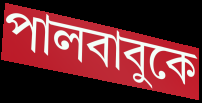
পালবাবুকে